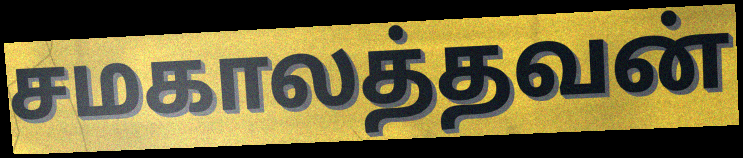
சமகாலத்தவன்